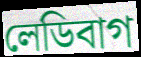
লেডিবাগ